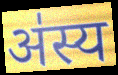
अ॑स्य